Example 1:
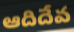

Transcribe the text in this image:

ఆదిదేవ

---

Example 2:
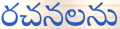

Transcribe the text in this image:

రచనలను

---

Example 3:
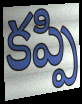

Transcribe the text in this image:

కప్పి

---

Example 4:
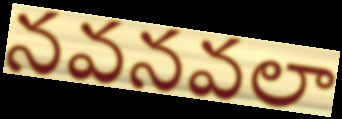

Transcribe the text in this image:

నవనవలా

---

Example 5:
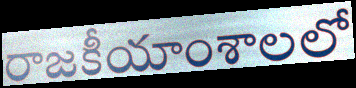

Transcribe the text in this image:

రాజకీయాంశాలలో